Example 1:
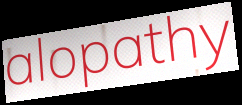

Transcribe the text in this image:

alopathy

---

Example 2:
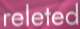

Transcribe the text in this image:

releted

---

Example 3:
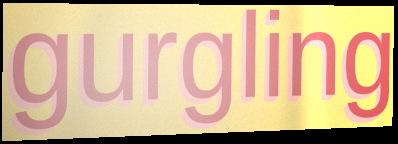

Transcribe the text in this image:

gurgling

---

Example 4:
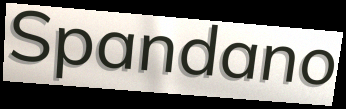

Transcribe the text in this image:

Spandano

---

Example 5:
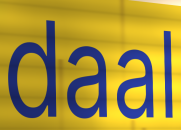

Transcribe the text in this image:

daal